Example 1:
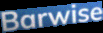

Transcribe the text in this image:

Barwise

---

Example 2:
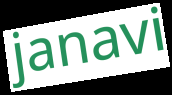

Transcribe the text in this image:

janavi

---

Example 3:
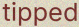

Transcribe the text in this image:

tipped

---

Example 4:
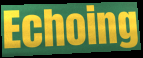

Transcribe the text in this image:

Echoing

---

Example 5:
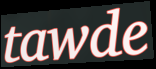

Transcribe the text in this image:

tawde